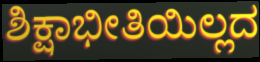
ಶಿಕ್ಷಾಭೀತಿಯಿಲ್ಲದ